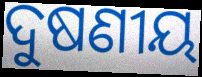
ଦୁଷଣୀୟ